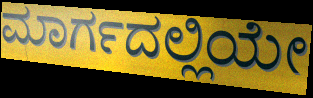
ಮಾರ್ಗದಲ್ಲಿಯೇ